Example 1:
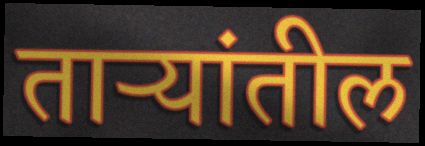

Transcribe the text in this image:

ताऱ्यांतील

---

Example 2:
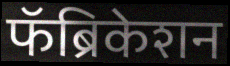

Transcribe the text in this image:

फॅब्रिकेशन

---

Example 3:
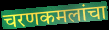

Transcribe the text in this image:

चरणकमलांचा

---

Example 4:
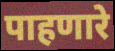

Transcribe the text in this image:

पाहणारे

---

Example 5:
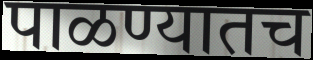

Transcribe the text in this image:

पाळण्यातच